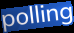
polling